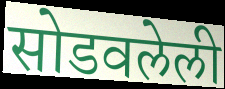
सोडवलेली